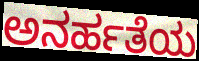
ಅನರ್ಹತೆಯ